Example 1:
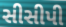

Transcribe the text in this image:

સીસીપી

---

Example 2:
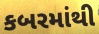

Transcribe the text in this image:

કબરમાંથી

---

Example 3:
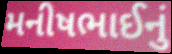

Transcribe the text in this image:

મનીષભાઈનું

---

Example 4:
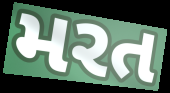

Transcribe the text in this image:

મરત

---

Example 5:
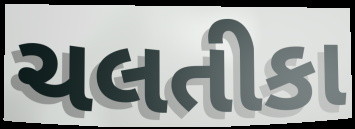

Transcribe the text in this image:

ચલતીકા